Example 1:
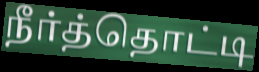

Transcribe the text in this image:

நீர்த்தொட்டி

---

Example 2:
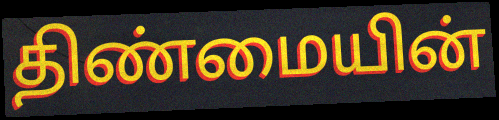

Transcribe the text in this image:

திண்மையின்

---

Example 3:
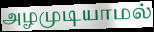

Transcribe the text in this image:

அழமுடியாமல்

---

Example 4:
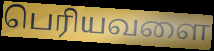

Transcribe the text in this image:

பெரியவளை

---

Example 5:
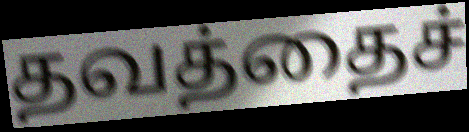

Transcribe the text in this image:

தவத்தைச்